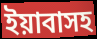
ইয়াবাসহ